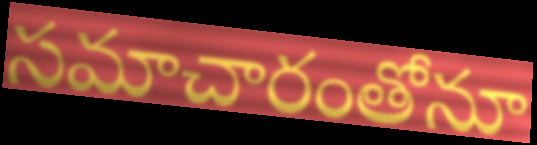
సమాచారంతోనూ